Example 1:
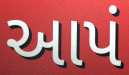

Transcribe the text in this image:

આપં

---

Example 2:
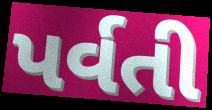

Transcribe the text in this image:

પર્વતી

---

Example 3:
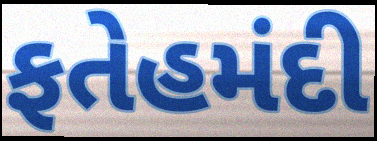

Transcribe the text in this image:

ફતેહમંદી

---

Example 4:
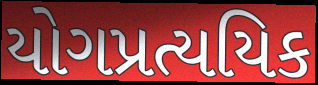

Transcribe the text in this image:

યોગપ્રત્યયિક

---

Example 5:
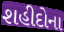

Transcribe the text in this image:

શહીદોના